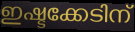
ഇഷ്ടക്കേടിന്